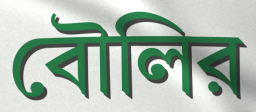
বৌলির